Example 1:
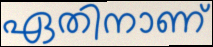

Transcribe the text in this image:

ഏതിനാണ്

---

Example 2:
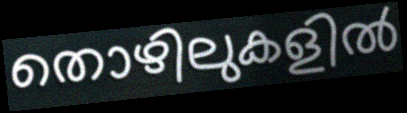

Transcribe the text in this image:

തൊഴിലുകളിൽ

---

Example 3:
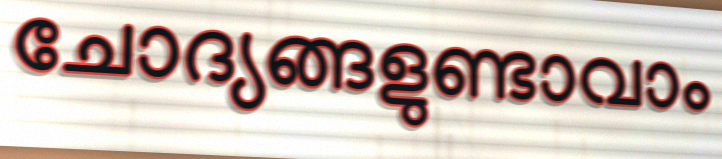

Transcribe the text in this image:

ചോദ്യങ്ങളുണ്ടാവാം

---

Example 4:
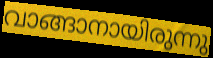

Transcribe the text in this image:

വാങ്ങാനായിരുന്നു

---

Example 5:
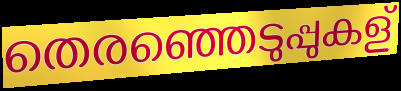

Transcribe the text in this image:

തെരഞ്ഞെടുപ്പുകള്